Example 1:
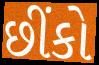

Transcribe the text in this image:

છીંકો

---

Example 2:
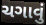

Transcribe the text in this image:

ચગાવું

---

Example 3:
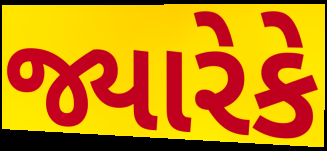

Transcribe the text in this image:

જ્યારેકે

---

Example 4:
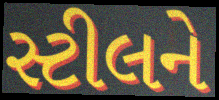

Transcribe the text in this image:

સ્ટીલને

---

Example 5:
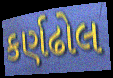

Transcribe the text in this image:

કર્ણઢોલ